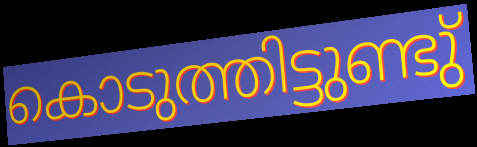
കൊടുത്തിട്ടുണ്ടു്